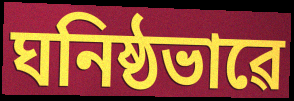
ঘনিষ্ঠভাৱে